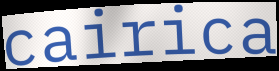
cairica